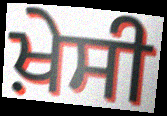
ਖ਼ੇਸੀ